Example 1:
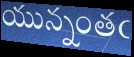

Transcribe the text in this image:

యున్నంతఁ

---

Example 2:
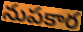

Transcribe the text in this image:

నుపకార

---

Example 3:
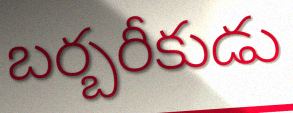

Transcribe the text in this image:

బర్బరీకుడు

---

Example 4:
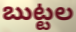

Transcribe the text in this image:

బుట్టల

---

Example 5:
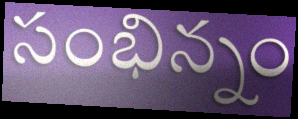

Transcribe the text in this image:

సంభిన్నం